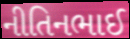
નીતિનભાઈ